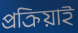
প্ৰক্ৰিয়াই